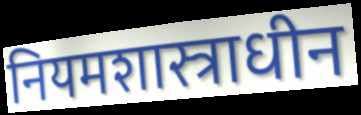
नियमशास्त्राधीन